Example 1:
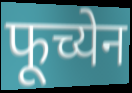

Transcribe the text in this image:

फूच्येन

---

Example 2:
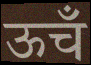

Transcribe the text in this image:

ऊचँ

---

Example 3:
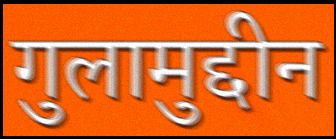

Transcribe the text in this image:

गुलामुद्दीन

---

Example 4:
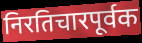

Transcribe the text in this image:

निरतिचारपूर्वक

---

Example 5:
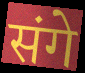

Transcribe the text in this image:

संगे